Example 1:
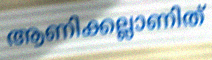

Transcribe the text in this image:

ആണിക്കല്ലാണിത്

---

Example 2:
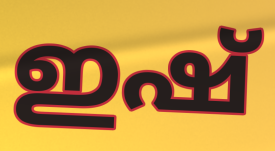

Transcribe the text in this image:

ഇഷ്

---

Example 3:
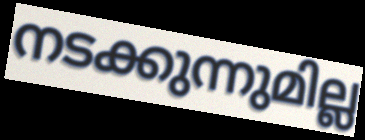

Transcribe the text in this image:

നടക്കുന്നുമില്ല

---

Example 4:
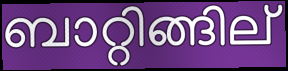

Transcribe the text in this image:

ബാറ്റിങ്ങില്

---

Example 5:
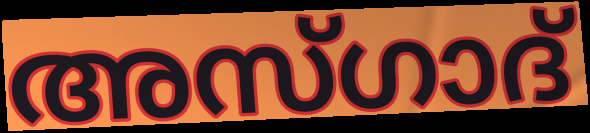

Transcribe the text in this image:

അസ്ഗാദ്